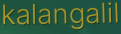
kalangalil